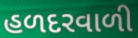
હળદરવાળી